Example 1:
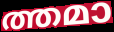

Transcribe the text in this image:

ത്തമാ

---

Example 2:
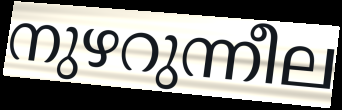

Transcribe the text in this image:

നുഴറുന്നീല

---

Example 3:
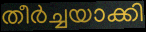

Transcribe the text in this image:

തീർച്ചയാക്കി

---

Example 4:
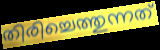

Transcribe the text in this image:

തിരിച്ചെത്തുന്നത്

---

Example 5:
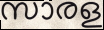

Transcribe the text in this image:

സാരള